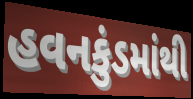
હવનકુંડમાંથી